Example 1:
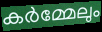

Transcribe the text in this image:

കർമ്മേലും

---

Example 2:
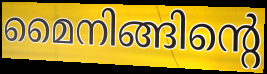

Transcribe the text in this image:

മൈനിങ്ങിന്റെ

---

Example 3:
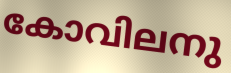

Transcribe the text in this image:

കോവിലനു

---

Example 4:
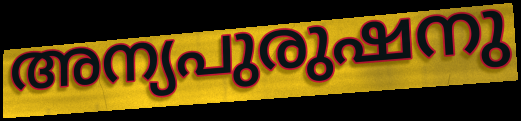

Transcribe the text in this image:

അന്യപുരുഷനു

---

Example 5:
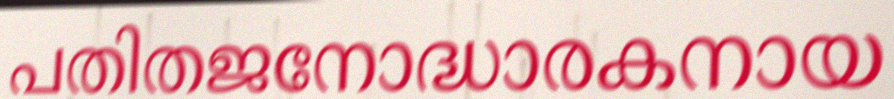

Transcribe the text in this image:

പതിതജനോദ്ധാരകനായ